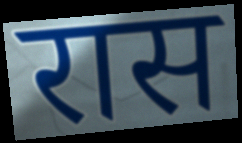
रास